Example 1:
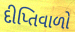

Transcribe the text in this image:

દીપ્તિવાળો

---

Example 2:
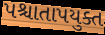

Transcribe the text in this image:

પશ્ચાતાપયુક્ત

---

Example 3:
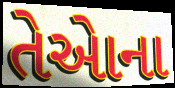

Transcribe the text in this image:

તેએાના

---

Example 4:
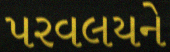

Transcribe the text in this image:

પરવલયને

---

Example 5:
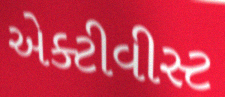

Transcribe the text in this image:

એક્ટીવીસ્ટ